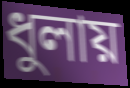
ধুলায়